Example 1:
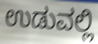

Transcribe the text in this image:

ಉಡುವಲ್ಲಿ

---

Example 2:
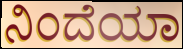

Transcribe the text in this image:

ನಿಂದೆಯಾ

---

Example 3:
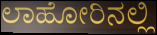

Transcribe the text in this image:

ಲಾಹೋರಿನಲ್ಲಿ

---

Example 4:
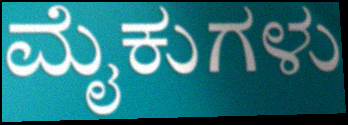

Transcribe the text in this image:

ಮೈಕುಗಳು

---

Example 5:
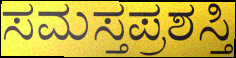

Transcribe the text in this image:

ಸಮಸ್ತಪ್ರಶಸ್ತಿ